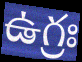
ఉగ్రః